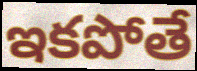
ఇకపోతే